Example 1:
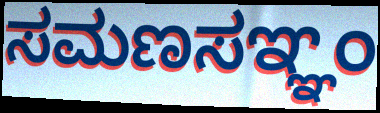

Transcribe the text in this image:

ಸಮಣಸಞ್ಞಂ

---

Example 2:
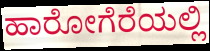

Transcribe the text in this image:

ಹಾರೋಗೆರೆಯಲ್ಲಿ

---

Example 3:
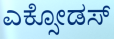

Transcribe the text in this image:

ಎಕ್ಸೋಡಸ್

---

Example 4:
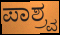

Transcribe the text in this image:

ಪಾಶ್ರ್ವ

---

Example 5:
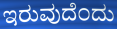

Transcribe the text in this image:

ಇರುವುದೆಂದು